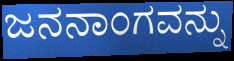
ಜನನಾಂಗವನ್ನು